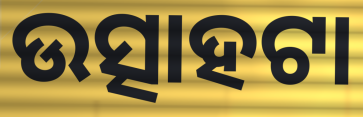
ଉତ୍ସାହଟା